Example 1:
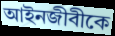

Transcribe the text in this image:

আইনজীবীকে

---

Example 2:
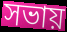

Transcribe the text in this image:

সভায়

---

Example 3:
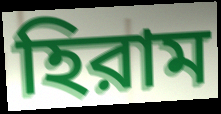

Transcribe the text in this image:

হিরাম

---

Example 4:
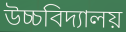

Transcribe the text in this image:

উচ্চবিদ্যালয়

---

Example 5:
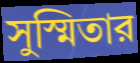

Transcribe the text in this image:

সুস্মিতার